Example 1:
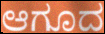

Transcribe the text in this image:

ಆಗೂದ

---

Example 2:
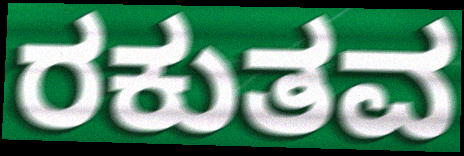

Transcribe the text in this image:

ರಕುತವ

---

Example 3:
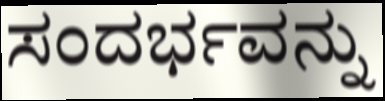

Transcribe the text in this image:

ಸಂದರ್ಭವನ್ನು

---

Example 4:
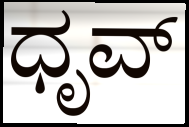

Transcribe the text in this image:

ಧೃವ್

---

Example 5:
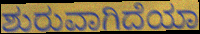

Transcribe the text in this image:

ಶುರುವಾಗಿದೆಯಾ